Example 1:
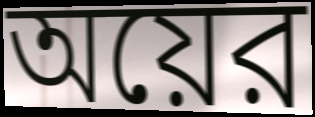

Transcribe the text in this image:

অয়ের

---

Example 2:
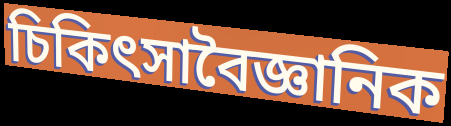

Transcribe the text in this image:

চিকিৎসাবৈজ্ঞানিক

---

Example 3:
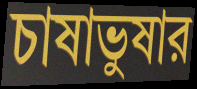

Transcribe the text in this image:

চাষাভুষার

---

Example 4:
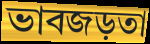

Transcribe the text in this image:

ভাবজড়তা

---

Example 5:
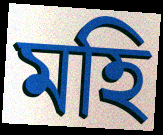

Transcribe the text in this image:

মহি